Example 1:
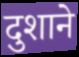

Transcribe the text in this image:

दुशाने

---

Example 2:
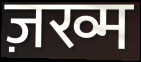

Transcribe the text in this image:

ज़ख्म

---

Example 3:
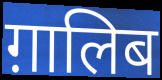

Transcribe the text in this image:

ग़ालिब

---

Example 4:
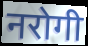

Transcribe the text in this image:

नरोगी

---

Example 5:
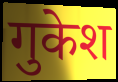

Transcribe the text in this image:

गुकेश